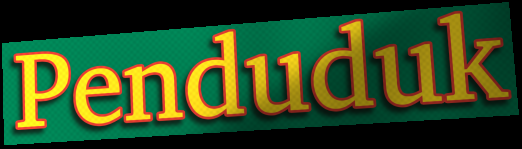
Penduduk